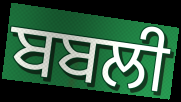
ਬਬਲੀ